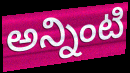
అన్నింటి